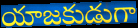
యాజకుడుగా